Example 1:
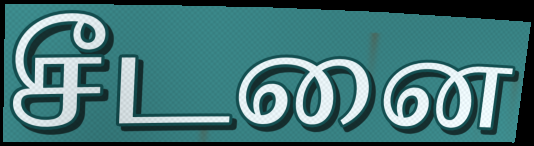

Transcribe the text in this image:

சீடனை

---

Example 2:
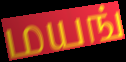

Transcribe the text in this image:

மயங்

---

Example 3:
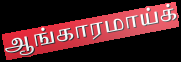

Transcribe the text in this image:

ஆங்காரமாய்க்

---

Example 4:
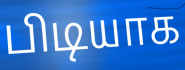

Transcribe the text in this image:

பிடியாக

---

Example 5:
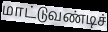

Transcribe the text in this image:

மாட்டுவண்டிச்